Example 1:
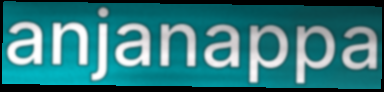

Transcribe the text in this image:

anjanappa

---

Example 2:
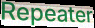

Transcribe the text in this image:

Repeater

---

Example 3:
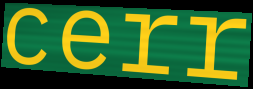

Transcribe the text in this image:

cerr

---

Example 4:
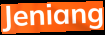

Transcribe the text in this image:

Jeniang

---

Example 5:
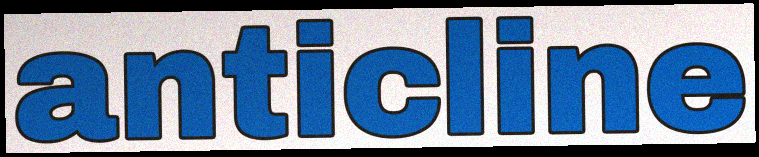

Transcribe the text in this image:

anticline